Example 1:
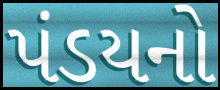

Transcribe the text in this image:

પંડયનો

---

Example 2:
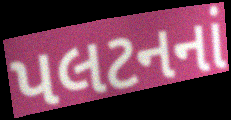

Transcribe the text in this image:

પલટનનાં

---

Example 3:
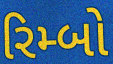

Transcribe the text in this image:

રિમ્બો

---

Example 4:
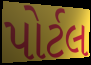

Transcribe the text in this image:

પોર્ટલ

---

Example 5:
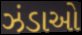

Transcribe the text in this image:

ઝંડાઓ